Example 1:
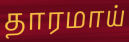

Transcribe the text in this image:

தாரமாய்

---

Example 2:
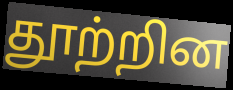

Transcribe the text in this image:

தூற்றின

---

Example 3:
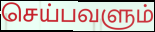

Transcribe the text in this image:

செய்பவளும்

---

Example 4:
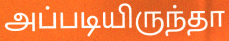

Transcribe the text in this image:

அப்படியிருந்தா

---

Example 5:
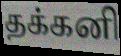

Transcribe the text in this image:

தக்கனி